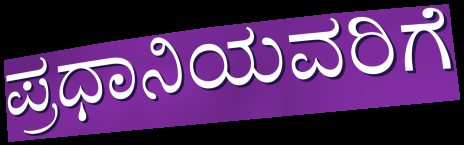
ಪ್ರಧಾನಿಯವರಿಗೆ